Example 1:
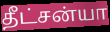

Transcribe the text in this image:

தீட்சன்யா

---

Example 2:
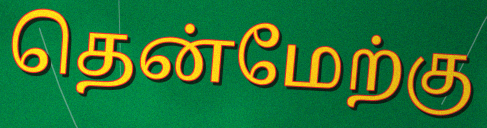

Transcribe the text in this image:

தென்மேற்கு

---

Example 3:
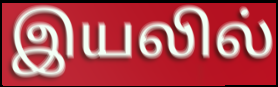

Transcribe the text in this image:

இயலில்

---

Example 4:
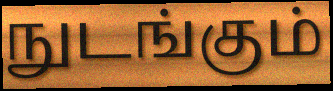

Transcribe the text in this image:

நுடங்கும்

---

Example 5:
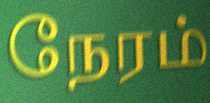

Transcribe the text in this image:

நேரம்